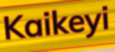
Kaikeyi